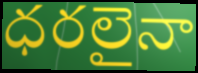
ధరలైనా